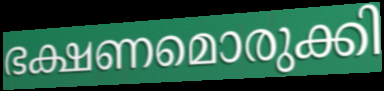
ഭക്ഷണമൊരുക്കി